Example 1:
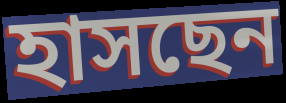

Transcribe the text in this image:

হাসছেন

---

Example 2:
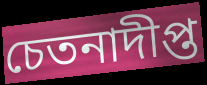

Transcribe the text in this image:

চেতনাদীপ্ত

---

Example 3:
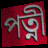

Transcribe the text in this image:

পত্নী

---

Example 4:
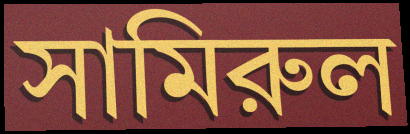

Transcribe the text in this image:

সামিরুল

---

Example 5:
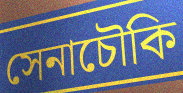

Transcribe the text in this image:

সেনাচৌকি